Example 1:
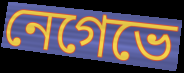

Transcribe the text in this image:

নেগেভে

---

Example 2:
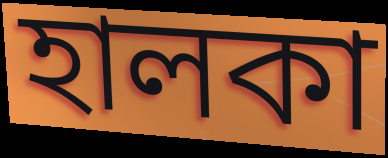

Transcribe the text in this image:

হালকা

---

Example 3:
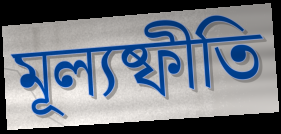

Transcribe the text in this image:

মূল্যষ্ফীতি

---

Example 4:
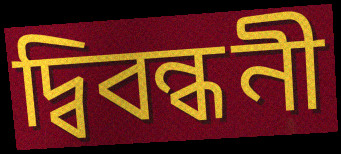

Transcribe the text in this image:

দ্বিবন্ধনী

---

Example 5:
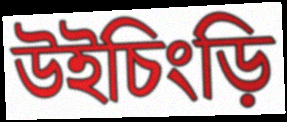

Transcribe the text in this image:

উইচিংড়ি